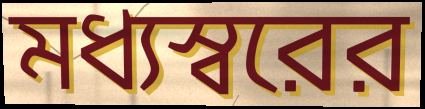
মধ্যস্বরের